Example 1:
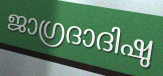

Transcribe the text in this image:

ജാഗ്രദാദിഷു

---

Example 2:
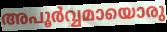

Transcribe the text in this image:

അപൂർവ്വമായൊരു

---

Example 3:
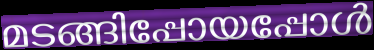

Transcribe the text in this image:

മടങ്ങിപ്പോയപ്പോൾ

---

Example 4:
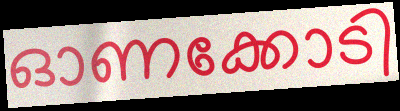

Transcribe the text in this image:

ഓണക്കോടി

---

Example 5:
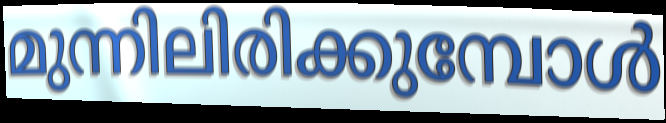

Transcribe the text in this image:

മുന്നിലിരിക്കുമ്പോൾ